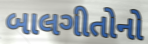
બાલગીતોનો